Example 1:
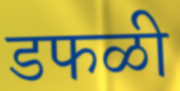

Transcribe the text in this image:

डफळी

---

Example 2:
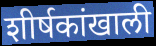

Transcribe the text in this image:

शीर्षकांखाली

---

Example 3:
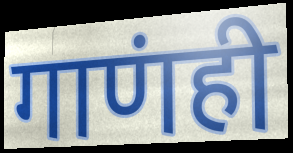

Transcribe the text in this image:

गाणंही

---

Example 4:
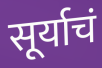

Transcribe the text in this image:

सूर्याचं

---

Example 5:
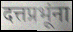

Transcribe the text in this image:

दत्तप्रभूंना